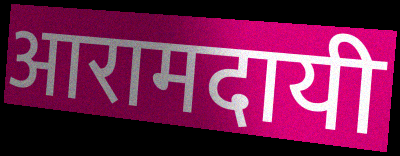
आरामदायी